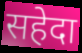
सहेदा